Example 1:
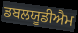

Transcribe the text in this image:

ਡਬਲਯੂਡੀਐਮ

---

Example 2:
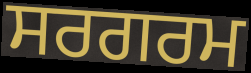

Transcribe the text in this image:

ਸਰਗਰਮ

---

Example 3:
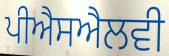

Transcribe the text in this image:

ਪੀਐਸਐਲਵੀ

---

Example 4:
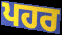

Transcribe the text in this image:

ਪਹਰ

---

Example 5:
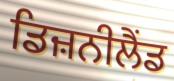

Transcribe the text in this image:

ਡਿਜ਼ਨੀਲੈਂਡ